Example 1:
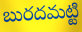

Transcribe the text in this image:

బురదమట్టి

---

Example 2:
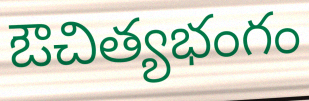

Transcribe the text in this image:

ఔచిత్యభంగం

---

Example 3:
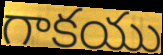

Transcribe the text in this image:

గాకయు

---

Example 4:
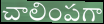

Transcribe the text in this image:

చాలింపగా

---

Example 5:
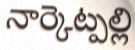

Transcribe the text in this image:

నార్కెట్పల్లి